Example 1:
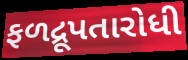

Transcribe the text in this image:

ફળદ્રૂપતારોધી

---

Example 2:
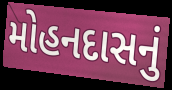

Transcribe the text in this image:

મોહનદાસનું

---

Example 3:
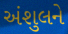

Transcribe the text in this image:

અંશુલને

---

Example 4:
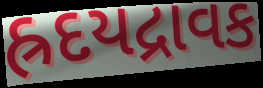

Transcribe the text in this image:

હ્રદયદ્રાવક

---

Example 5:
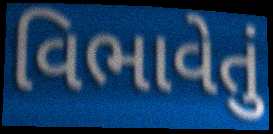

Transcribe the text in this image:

વિભાવેતું